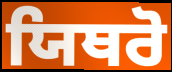
ਯਿਥਰੋ